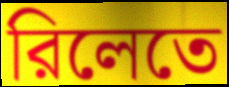
রিলেতে